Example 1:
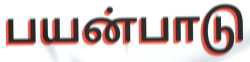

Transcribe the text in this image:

பயன்பாடு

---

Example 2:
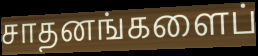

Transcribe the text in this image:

சாதனங்களைப்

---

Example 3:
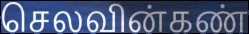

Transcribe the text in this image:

செலவின்கண்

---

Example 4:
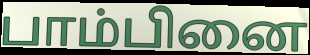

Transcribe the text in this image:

பாம்பினை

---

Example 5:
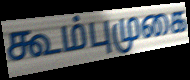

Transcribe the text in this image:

கூம்புமுகை